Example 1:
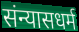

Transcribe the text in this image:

संन्यासधर्म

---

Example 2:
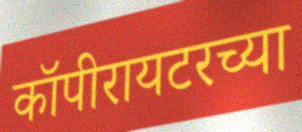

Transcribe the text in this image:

कॉपीरायटरच्या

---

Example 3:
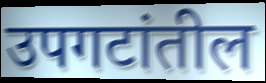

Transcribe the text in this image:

उपगटांतील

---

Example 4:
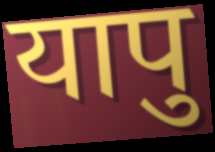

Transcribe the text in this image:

यापु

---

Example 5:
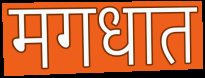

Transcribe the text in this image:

मगधात